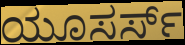
ಯೂಸರ್ಸ್